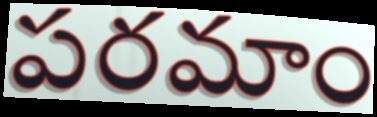
పరమాం